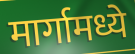
मार्गामध्ये